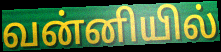
வன்னியில்